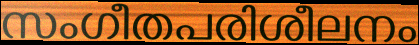
സംഗീതപരിശീലനം